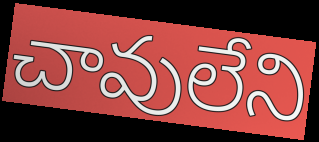
చావులేని